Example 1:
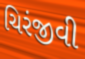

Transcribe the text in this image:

ચિરંજીવી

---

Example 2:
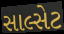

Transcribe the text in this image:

સાલ્સેટ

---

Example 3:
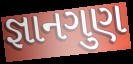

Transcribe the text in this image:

જ્ઞાનગુણ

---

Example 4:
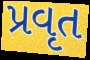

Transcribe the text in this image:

પ્રવૃત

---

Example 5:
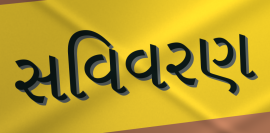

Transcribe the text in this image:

સવિવરણ